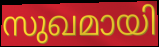
സുഖമായി